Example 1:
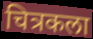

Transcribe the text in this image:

चित्रकला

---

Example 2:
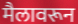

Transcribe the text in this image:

मैलावरून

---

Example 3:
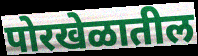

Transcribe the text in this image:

पोरखेळातील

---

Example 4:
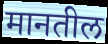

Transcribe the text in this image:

मानतील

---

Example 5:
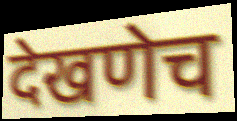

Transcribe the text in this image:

देखणेच